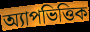
অ্যাপভিত্তিক